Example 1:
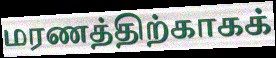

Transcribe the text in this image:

மரணத்திற்காகக்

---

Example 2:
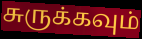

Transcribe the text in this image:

சுருக்கவும்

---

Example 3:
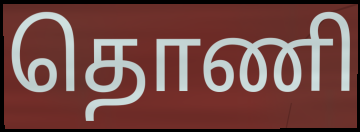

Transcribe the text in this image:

தொணி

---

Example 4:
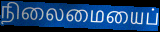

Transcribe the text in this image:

நிலைமையைப்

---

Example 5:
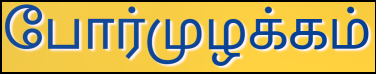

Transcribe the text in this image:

போர்முழக்கம்